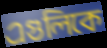
এগুলিকে